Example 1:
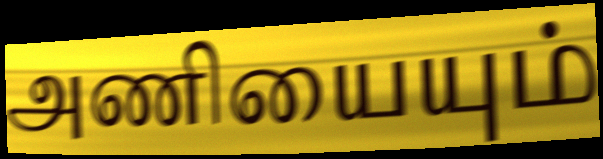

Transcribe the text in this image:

அணியையும்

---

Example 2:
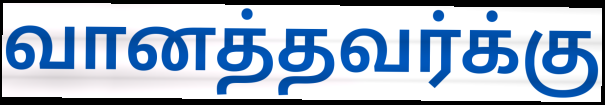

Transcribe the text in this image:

வானத்தவர்க்கு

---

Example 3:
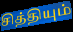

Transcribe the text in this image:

சித்தியும்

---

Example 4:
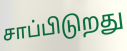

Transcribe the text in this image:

சாப்பிடுறது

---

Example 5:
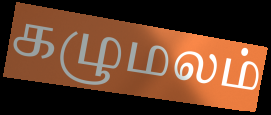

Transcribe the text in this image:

கழுமலம்